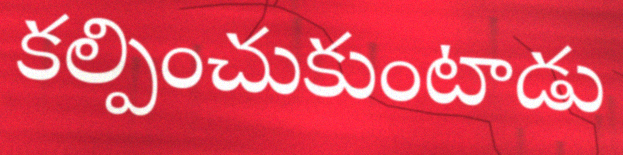
కల్పించుకుంటాడు